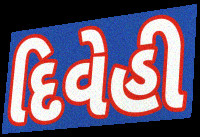
દિવેહી